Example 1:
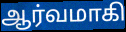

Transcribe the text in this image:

ஆர்வமாகி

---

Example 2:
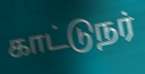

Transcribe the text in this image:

காட்டுநர்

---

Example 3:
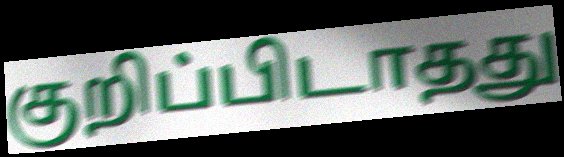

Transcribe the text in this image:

குறிப்பிடாதது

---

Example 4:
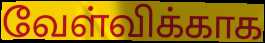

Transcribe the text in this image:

வேள்விக்காக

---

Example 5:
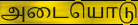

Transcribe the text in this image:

அடையொடு